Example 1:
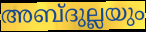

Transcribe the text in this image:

അബ്ദുല്ലയും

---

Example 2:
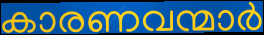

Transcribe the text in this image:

കാരണവന്മാർ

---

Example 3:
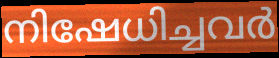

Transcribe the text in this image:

നിഷേധിച്ചവർ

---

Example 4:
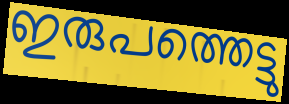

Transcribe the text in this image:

ഇരുപത്തെട്ടു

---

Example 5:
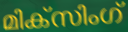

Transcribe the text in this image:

മിക്‌സിംഗ്